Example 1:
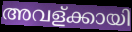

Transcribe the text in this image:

അവള്ക്കായി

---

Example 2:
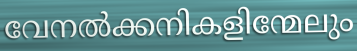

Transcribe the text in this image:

വേനൽക്കനികളിന്മേലും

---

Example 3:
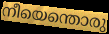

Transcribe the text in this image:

നീയെന്തൊരു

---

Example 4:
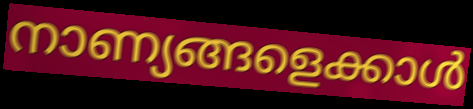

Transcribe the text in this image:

നാണ്യങ്ങളെക്കാൾ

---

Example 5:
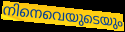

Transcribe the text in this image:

നിനെവെയുടെയും